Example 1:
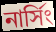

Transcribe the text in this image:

নার্সিং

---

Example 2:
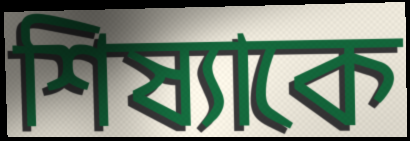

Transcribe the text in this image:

শিষ্যাকে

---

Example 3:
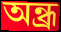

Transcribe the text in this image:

অন্ধ্র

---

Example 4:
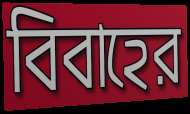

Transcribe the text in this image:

বিবাহের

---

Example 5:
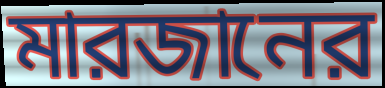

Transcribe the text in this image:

মারজানের